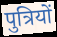
पुत्रियों